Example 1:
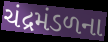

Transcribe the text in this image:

ચંદ્રમંડળના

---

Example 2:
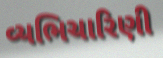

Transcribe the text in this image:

વ્યભિચારિણી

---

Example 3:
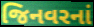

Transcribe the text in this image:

જિનવરનાં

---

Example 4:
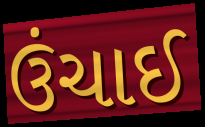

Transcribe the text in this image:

ઉંચાઈ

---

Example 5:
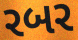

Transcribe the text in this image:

રબર